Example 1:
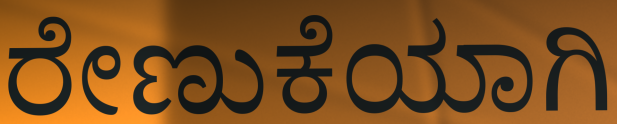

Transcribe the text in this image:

ರೇಣುಕೆಯಾಗಿ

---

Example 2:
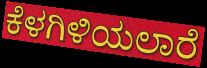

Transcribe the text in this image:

ಕೆಳಗಿಳಿಯಲಾರೆ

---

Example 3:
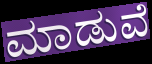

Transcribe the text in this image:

ಮಾಡುವೆ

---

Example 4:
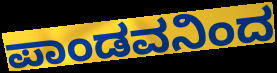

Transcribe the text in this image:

ಪಾಂಡವನಿಂದ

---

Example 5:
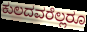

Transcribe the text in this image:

ಕುಲದವರೆಲ್ಲರೂ